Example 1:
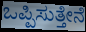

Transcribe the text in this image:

ಒಪ್ಪಿಸುತ್ತೇನೆ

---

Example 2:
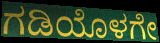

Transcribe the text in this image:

ಗಡಿಯೊಳಗೇ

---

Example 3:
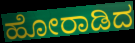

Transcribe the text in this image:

ಹೋರಾಡಿದ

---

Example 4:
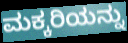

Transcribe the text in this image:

ಮಕ್ಕರಿಯನ್ನು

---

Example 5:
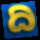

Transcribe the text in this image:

ದಿ